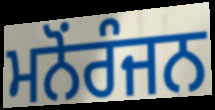
ਮਨੋਂਰੰਜਨ